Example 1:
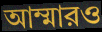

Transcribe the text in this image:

আম্মারও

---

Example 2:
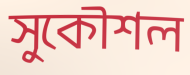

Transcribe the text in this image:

সুকৌশল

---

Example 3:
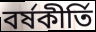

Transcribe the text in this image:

বর্ষকীর্তি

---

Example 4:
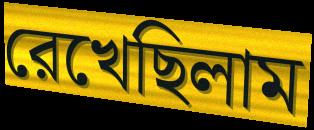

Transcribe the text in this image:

রেখেছিলাম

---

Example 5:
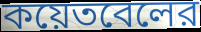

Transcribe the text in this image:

কয়েতবেলের